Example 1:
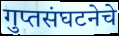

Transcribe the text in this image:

गुप्तसंघटनेचे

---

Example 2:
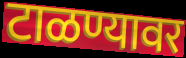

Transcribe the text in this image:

टाळण्यावर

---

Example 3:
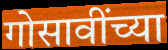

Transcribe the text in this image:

गोसावींच्या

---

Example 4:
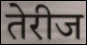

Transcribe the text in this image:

तेरीज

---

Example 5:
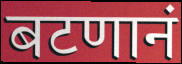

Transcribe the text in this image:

बटणानं